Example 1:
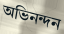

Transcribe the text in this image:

অভিনন্দন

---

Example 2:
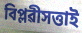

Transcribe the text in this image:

বিপ্লৱীসত্তাই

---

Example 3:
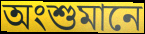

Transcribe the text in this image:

অংশুমানে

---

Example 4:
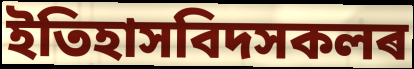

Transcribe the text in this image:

ইতিহাসবিদসকলৰ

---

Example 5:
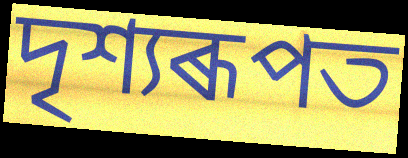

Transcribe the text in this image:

দৃশ্যৰূপত